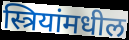
स्त्रियांमधील